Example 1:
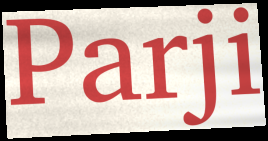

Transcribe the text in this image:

Parji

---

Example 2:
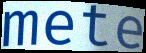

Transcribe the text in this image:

mete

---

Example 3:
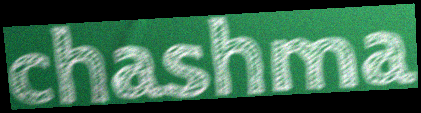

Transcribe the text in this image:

chashma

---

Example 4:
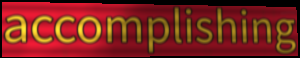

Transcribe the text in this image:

accomplishing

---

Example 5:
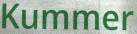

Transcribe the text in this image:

Kummer